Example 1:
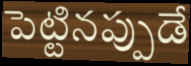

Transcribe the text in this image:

పెట్టినప్పుడే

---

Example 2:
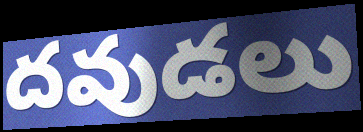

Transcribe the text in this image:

దవుడలు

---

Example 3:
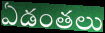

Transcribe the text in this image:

ఏడంతలు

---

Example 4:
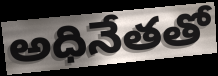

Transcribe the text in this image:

అధినేతతో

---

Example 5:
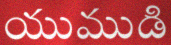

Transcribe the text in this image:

యుముడి